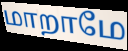
மாறாமே